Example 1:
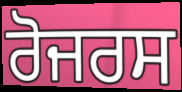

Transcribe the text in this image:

ਰੋਜਰਸ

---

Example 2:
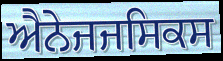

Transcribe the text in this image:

ਐਨੇਜਜਸਿਕਸ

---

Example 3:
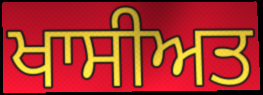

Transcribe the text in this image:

ਖਾਸੀਅਤ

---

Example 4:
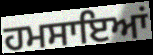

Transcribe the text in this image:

ਹਮਸਾਇਆਂ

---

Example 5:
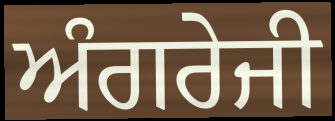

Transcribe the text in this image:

ਅੰਗਰੇਜੀ